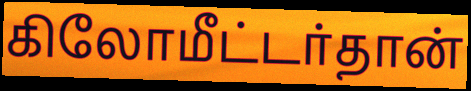
கிலோமீட்டர்தான்